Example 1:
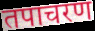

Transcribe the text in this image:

तपाचरण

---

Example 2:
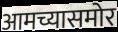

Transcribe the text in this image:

आमच्यासमोर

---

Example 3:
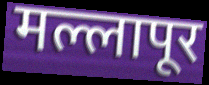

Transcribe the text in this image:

मल्लापूर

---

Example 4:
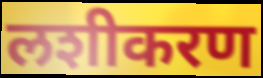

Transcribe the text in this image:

लशीकरण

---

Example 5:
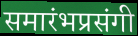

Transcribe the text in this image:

समारंभप्रसंगी